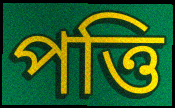
পত্তি